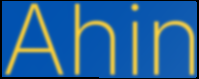
Ahin